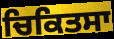
ਚਿਕਿਤਸਾ